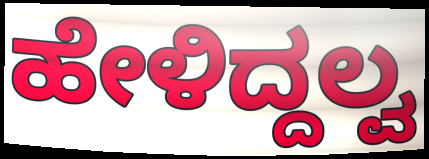
ಹೇಳಿದ್ದಲ್ವ